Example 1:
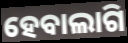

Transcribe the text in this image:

ହେବାଲାଗି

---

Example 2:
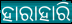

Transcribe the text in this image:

ହାରାହାରି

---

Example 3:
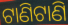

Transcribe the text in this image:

ଟାଣିଟାଣି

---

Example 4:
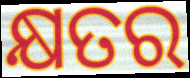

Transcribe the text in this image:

କ୍ଷତର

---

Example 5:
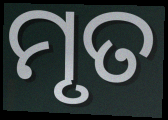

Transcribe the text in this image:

ମୃତ